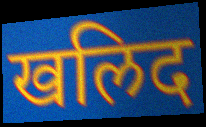
खलिद